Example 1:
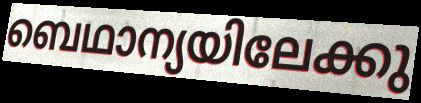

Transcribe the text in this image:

ബെഥാന്യയിലേക്കു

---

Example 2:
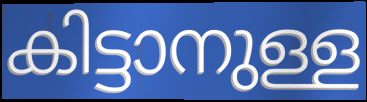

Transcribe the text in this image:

കിട്ടാനുള്ള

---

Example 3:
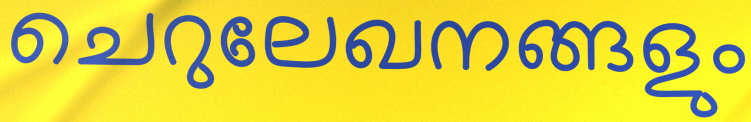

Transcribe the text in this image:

ചെറുലേഖനങ്ങളും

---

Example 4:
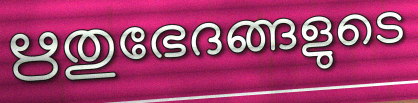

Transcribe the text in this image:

ഋതുഭേദങ്ങളുടെ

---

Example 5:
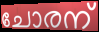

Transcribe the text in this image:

ചോരന്